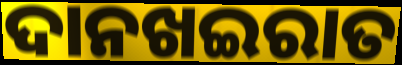
ଦାନଖଇରାତ